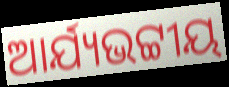
ଆର୍ଯ୍ୟଭଟ୍ଟୀୟ